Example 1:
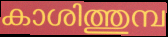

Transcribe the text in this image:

കാശിത്തുമ്പ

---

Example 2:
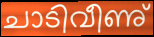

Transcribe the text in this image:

ചാടിവീണു്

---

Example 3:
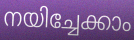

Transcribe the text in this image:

നയിച്ചേക്കാം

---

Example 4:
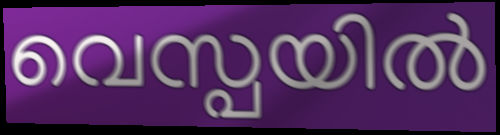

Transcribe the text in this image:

വെസ്പയിൽ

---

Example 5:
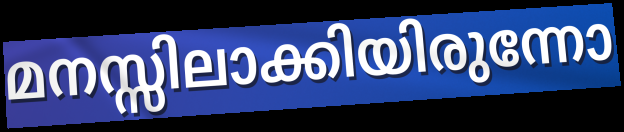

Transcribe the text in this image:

മനസ്സിലാക്കിയിരുന്നോ